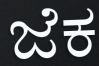
ಜೆಕ